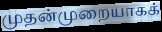
முதன்முறையாகக்